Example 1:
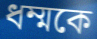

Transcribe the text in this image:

ধম্মকে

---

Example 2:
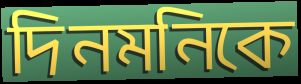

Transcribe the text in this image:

দিনমনিকে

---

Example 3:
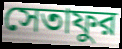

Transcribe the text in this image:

সেতাফুর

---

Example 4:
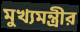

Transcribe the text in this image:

মুখ্যমন্ত্রীর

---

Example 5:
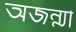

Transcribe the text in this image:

অজন্মা